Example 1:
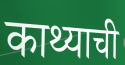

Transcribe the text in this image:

काथ्याची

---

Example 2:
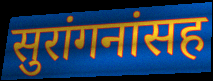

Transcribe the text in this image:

सुरांगनांसह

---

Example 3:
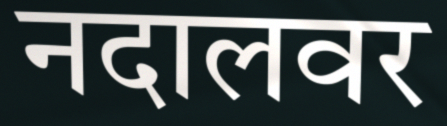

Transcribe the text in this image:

नदालवर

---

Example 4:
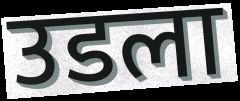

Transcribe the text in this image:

उडला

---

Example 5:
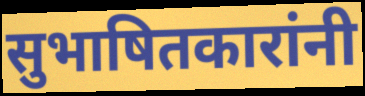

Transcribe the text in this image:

सुभाषितकारांनी